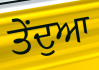
ਤੇਂਦੁਆ